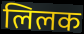
लिलक